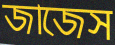
জাজেস